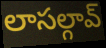
లాసల్గావ్